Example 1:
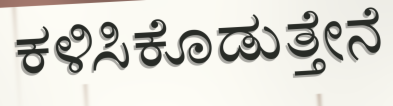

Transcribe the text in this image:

ಕಳಿಸಿಕೊಡುತ್ತೇನೆ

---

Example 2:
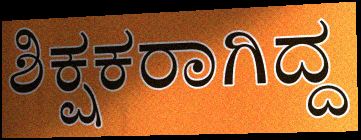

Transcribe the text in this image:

ಶಿಕ್ಷಕರಾಗಿದ್ದ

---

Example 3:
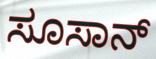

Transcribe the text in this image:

ಸೂಸಾನ್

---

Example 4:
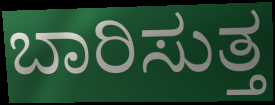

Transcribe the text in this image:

ಬಾರಿಸುತ್ತ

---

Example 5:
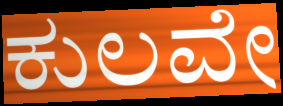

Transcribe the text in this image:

ಕುಲವೇ